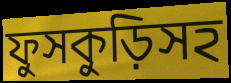
ফুসকুড়িসহ